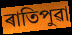
ৰাতিপুৱা